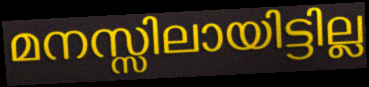
മനസ്സിലായിട്ടില്ല